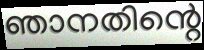
ഞാനതിന്റെ